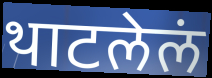
थाटलेलं